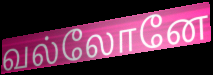
வல்லோனே